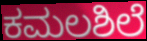
ಕಮಲಶಿಲೆ